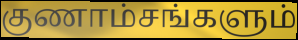
குணாம்சங்களும்